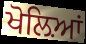
ਖੋਲ਼ਿਆਂ